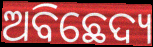
ଅବିଛେଦ୍ୟ